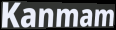
Kanmam